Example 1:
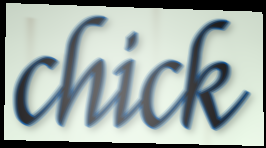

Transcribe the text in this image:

chick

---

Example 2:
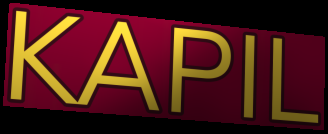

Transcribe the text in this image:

KAPIL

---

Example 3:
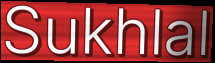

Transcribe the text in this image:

Sukhlal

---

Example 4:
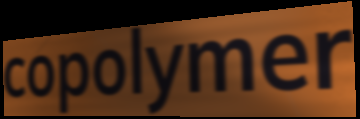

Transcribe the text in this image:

copolymer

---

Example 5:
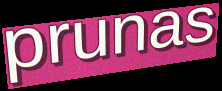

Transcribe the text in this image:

prunas